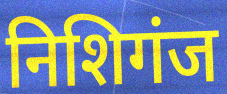
निशिगंज